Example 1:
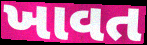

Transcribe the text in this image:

ખાવત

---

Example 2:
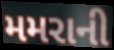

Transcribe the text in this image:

મમરાની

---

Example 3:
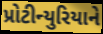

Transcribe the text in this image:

પ્રોટીન્યુરિયાને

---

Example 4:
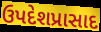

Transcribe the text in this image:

ઉપદેશપ્રાસાદ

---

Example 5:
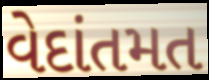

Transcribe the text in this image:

વેદાંતમત